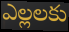
ఎల్లలకు